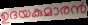
ഉദയകുമാരൻ